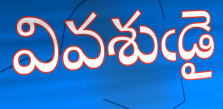
వివశుఁడై